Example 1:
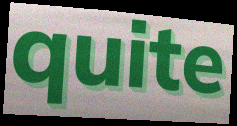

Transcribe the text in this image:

quite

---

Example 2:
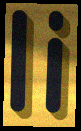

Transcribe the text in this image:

li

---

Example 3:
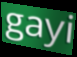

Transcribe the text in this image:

gayi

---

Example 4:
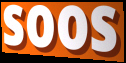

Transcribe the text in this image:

soos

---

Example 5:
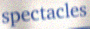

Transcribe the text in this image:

spectacles